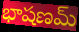
భాషణమ్